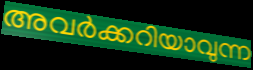
അവർക്കറിയാവുന്ന